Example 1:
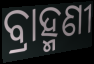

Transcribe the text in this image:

ବ୍ରାହ୍ମଣୀ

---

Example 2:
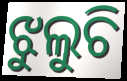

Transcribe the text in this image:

ଝୁଲୁଚି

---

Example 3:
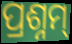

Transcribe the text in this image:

ପ୍ରଶ୍ନମ୍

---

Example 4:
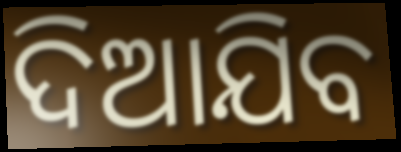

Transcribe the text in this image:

ଦିଆଯିବ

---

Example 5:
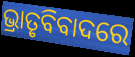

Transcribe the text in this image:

ଭ୍ରାତୃବିବାଦରେ